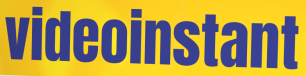
videoinstant